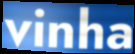
vinha